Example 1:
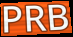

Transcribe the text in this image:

PRB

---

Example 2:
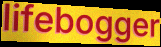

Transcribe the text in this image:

lifebogger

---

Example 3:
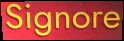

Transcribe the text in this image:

Signore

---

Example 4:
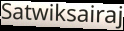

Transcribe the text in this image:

Satwiksairaj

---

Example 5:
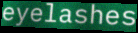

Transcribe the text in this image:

eyelashes